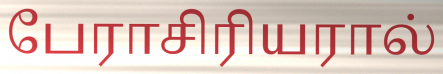
பேராசிரியரால்